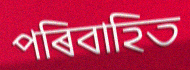
পৰিবাহিত